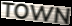
TOWN